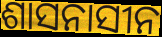
ଶାସନାସୀନ